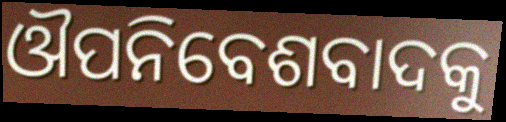
ଔପନିବେଶବାଦକୁ